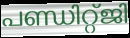
പണ്ഡിറ്റ്ജി